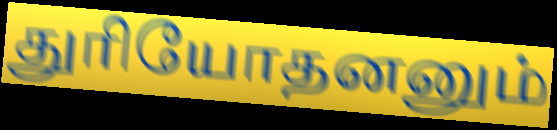
துரியோதனனும்